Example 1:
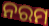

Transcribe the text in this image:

ନରମ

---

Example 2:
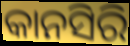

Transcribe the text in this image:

କାନସିରି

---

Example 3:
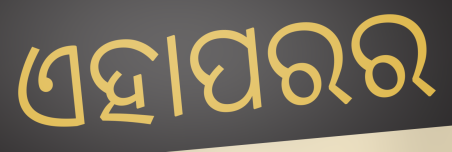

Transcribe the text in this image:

ଏହାପରର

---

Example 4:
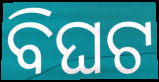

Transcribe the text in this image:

ବିଘଟ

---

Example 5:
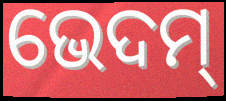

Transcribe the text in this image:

ଭେଦମ୍